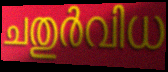
ചതുർവിധ